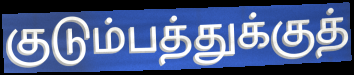
குடும்பத்துக்குத்